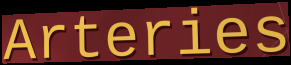
Arteries